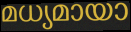
മധ്യമായാ